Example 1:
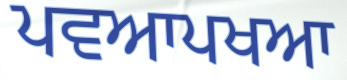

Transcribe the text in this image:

ਪਵਆਪਖਆ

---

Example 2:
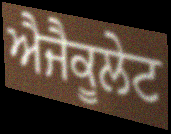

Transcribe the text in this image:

ਐਜੈਕੂਲੇਟ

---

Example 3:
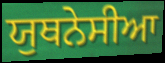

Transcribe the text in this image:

ਯੁਥਨੇਸੀਆ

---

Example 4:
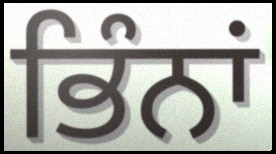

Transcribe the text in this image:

ਭਿੰਨਾਂ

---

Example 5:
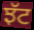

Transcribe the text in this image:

ਝੱਟ